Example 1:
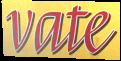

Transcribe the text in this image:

vate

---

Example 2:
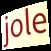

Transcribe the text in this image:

jole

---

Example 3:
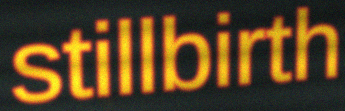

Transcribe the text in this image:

stillbirth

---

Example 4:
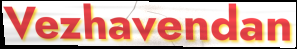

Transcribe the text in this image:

Vezhavendan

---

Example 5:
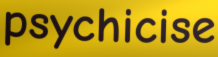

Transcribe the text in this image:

psychicise